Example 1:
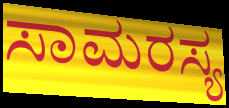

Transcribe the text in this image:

ಸಾಮರಸ್ಯ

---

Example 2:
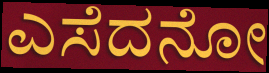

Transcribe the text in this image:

ಎಸೆದನೋ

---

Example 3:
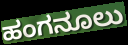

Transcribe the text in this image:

ಹಂಗನೂಲು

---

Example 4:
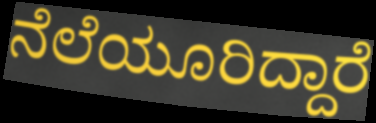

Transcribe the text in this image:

ನೆಲೆಯೂರಿದ್ದಾರೆ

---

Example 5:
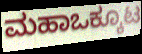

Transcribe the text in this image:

ಮಹಾಒಕ್ಕೂಟ